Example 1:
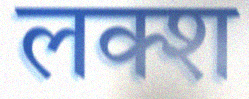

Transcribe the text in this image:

लक्श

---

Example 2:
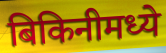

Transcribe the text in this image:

बिकिनीमध्ये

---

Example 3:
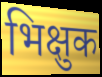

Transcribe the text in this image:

भिक्षुक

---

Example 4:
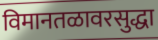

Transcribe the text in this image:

विमानतळावरसुद्धा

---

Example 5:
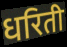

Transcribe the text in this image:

धरिती